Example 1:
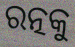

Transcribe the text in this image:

ରତ୍ନକୁ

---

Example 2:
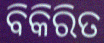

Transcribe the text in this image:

ବିକିରିତ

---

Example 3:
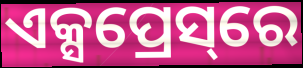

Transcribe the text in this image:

ଏକ୍ସପ୍ରେସ୍‌ରେ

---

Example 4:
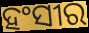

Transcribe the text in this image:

ହଂସୀର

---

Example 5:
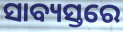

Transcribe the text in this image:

ସାବ୍ୟସ୍ତରେ